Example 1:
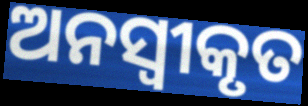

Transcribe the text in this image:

ଅନସ୍ବୀକୃତ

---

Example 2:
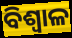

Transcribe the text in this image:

ବିଶ୍ୱାଳ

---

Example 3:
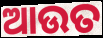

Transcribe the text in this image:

ଆଉତ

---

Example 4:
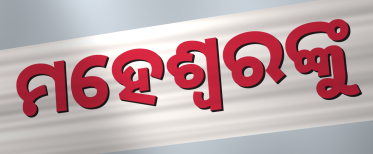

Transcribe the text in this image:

ମହେଶ୍ଵରଙ୍କୁ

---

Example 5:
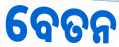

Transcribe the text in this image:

ବେତନ